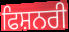
ਫਿਸ਼ਨਰੀ